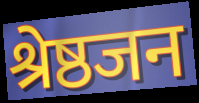
श्रेष्ठजन